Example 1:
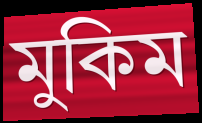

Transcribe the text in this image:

মুকিম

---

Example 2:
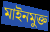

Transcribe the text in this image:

মাইনমুক্ত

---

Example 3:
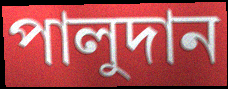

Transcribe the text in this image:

পালুদান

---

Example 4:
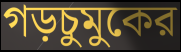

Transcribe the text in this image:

গড়চুমুকের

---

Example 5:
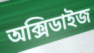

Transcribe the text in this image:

অক্সিডাইজ